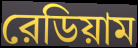
রেডিয়াম